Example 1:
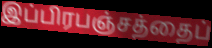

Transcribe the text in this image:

இப்பிரபஞ்சத்தைப்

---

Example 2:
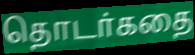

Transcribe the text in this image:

தொடர்கதை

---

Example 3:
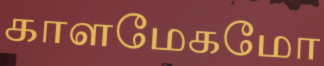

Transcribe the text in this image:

காளமேகமோ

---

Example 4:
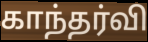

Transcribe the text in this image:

காந்தர்வி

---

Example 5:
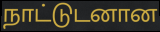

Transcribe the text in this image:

நாட்டுடனான